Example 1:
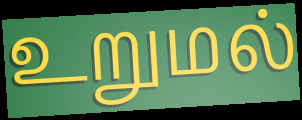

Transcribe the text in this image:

உறுமல்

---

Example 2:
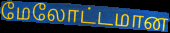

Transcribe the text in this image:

மேலோட்டமான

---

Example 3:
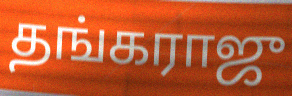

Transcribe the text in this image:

தங்கராஜு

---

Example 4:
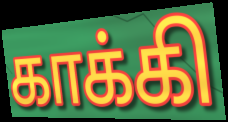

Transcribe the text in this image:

காக்கி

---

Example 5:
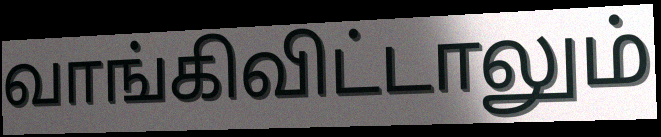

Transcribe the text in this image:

வாங்கிவிட்டாலும்